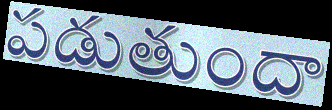
పడుతుందా